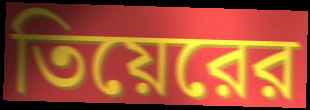
তিয়েরের